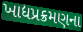
ખાદ્યપ્રક્રમણના